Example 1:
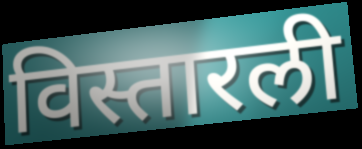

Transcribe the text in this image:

विस्तारली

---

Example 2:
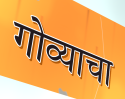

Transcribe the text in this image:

गोव्याचा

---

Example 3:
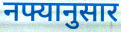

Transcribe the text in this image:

नफ्यानुसार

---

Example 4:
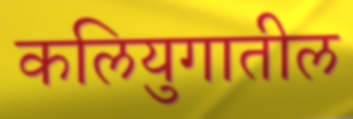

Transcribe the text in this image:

कलियुगातील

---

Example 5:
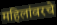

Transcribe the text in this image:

महिलांवरचे